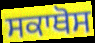
ਸਕਾਥੋਸ